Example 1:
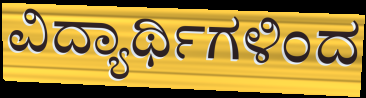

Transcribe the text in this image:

ವಿದ್ಯಾರ್ಥಿಗಳಿಂದ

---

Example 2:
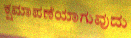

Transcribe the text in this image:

ಕ್ಷಮಾಪಣೆಯಾಗುವುದು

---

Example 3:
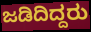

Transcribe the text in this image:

ಜಡಿದಿದ್ದರು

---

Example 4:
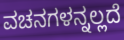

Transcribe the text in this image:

ವಚನಗಳನ್ನಲ್ಲದೆ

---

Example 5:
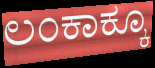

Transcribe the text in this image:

ಲಂಕಾಕ್ಕೂ